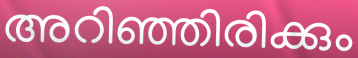
അറിഞ്ഞിരിക്കും